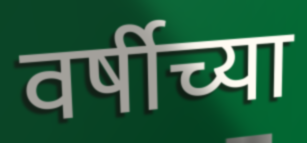
वर्षीच्या